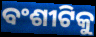
ବଂଶୀଟିକୁ